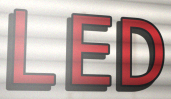
LED